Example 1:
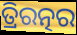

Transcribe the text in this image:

ତ୍ରିରତ୍ନର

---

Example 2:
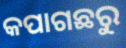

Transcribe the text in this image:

କପାଗଛରୁ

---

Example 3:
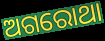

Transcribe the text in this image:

ଅଗରୋଥା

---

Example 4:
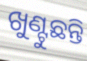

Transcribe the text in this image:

ଖୁଣ୍ଟୁଛନ୍ତି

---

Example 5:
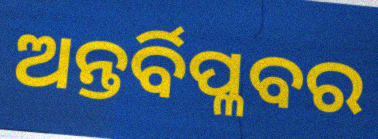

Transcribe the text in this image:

ଅନ୍ତର୍ବିପ୍ଳବର